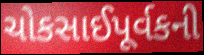
ચોકસાઈપૂર્વકની